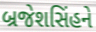
બ્રજેશસિંહને